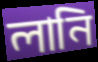
লানি